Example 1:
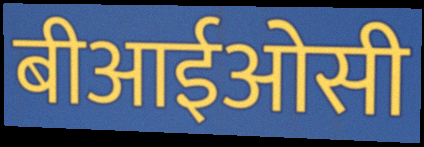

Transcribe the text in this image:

बीआईओसी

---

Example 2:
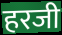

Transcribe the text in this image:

हरजी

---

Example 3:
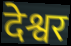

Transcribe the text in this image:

देश्वर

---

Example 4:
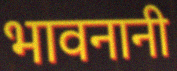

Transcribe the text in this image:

भावनानी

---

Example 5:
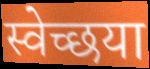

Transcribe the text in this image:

स्वेच्छया